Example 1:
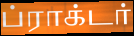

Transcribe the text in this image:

ப்ராக்டர்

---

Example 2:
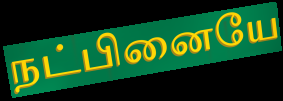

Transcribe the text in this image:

நட்பினையே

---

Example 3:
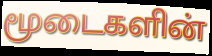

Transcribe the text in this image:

மூடைகளின்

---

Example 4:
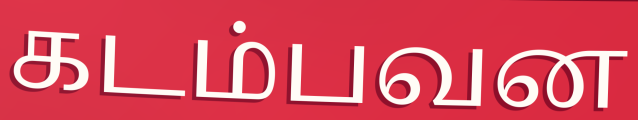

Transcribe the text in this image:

கடம்பவன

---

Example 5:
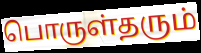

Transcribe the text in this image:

பொருள்தரும்